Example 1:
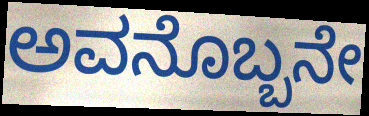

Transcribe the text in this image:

ಅವನೊಬ್ಬನೇ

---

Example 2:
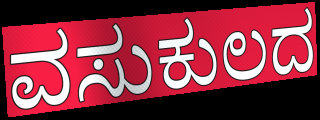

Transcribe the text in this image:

ವಸುಕುಲದ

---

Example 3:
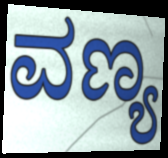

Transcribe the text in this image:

ವಣ್ಯ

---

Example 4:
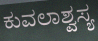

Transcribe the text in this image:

ಕುವಲಾಶ್ವಸ್ಯ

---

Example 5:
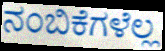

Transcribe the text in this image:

ನಂಬಿಕೆಗಳೆಲ್ಲ